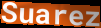
Suarez